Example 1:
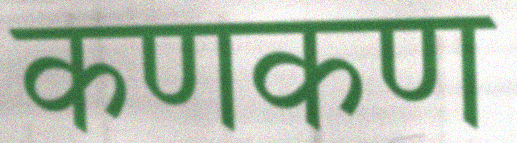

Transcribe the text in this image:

कणकण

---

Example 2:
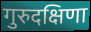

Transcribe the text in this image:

गुरुदक्षिणा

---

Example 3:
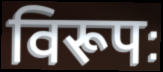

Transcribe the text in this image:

विरूपः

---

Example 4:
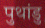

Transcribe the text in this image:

पुथांडु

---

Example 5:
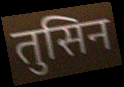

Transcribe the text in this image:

तुसिन